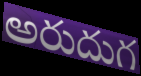
అరుదుగ